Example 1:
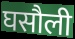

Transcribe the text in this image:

घसौली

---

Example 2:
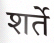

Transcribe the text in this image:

शर्ते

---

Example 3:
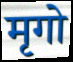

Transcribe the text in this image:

मृगो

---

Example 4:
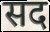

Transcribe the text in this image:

सद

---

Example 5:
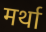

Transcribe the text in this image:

मर्था